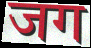
जग